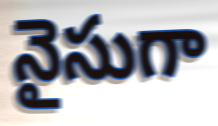
నైసుగా